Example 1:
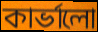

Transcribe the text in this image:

কার্ভালো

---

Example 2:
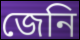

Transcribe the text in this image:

জেনি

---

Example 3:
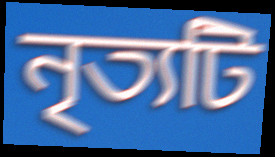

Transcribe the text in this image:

নৃত্যটি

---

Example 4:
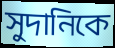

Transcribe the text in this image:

সুদানিকে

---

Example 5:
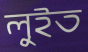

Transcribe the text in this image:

লুইত